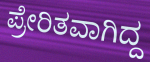
ಪ್ರೇರಿತವಾಗಿದ್ದ